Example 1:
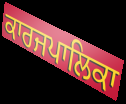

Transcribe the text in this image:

ਕਾਰਜਪਾਲਿਕਾ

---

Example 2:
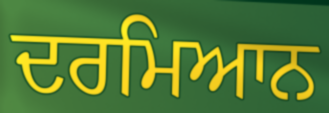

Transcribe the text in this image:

ਦਰਮਿਆਨ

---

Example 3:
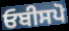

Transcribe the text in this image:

ਓਬੀਸਪੋ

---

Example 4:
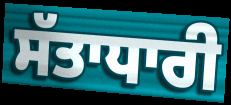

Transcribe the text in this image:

ਸੱਤਾਧਾਰੀ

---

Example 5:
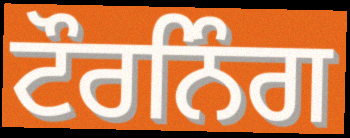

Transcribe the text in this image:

ਟੌਰਨਿੰਗ